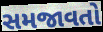
સમજાવતો